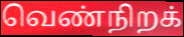
வெண்நிறக்